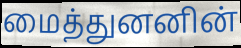
மைத்துனனின்